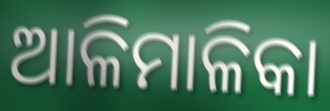
ଆଳିମାଳିକା